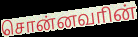
சொன்னவரின்